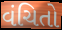
વંચિતો